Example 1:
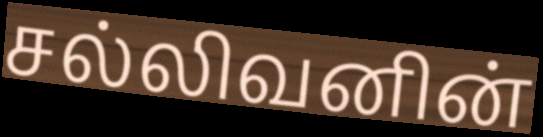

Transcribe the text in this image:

சல்லிவனின்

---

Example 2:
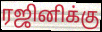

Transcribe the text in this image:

ரஜினிக்கு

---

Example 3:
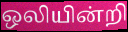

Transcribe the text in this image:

ஒலியின்றி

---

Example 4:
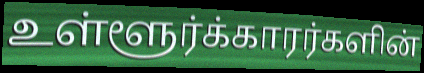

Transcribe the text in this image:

உள்ளூர்க்காரர்களின்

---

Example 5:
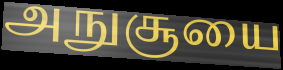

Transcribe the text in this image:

அநுசூயை